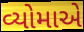
વ્યોમાએ